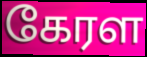
கேரள